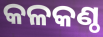
କଳକଣ୍ଠ